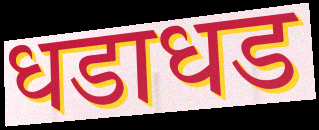
धडाधड